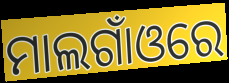
ମାଲଗାଁଓରେ